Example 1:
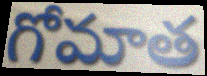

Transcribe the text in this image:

గోమాత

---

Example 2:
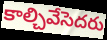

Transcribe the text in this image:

కాల్చివేసెదరు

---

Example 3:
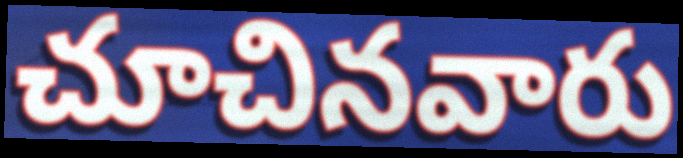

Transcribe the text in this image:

చూచినవారు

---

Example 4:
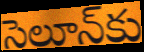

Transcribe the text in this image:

సెలూన్‌కు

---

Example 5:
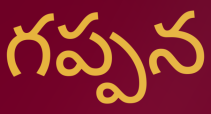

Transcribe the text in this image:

గప్పన